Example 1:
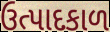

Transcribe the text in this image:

ઉત્પાદકાળ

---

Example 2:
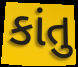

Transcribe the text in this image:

કાંતુ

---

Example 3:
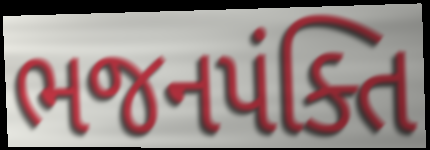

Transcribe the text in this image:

ભજનપંક્તિ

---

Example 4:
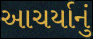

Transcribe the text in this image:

આચર્યાનું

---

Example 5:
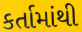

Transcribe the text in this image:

કર્તામાંથી